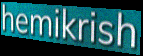
hemikrish